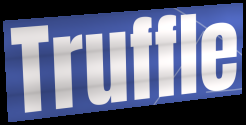
Truffle